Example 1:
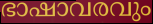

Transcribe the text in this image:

ഭാഷാവരവും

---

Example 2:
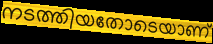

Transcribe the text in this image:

നടത്തിയതോടെയാണ്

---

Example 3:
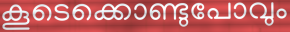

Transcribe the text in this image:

കൂടെക്കൊണ്ടുപോവും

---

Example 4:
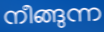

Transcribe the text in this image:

നീങ്ങുന്ന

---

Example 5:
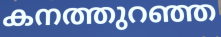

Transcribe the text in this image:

കനത്തുറഞ്ഞ